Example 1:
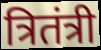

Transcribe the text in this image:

त्रितंत्री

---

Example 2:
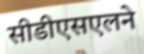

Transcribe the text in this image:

सीडीएसएलने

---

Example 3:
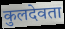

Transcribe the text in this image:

कुलदेवता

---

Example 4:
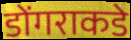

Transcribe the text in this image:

डोंगराकडे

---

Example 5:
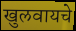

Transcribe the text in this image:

खुलवायचे